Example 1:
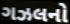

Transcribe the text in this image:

ગઝલનો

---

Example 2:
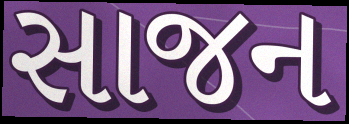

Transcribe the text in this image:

સાજન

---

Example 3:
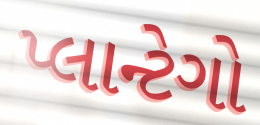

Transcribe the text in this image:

પ્લાન્ટેગો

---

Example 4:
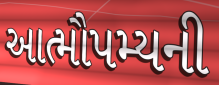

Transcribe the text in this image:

આત્મૌપમ્યની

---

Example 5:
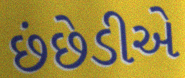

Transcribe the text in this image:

છંછેડીએ